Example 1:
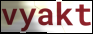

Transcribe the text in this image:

vyakt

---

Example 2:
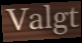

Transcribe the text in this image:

Valgt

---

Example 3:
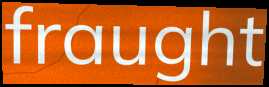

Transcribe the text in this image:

fraught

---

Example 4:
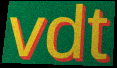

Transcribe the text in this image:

vdt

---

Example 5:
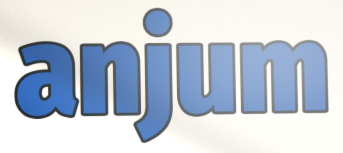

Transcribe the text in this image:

anjum